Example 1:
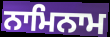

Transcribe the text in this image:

ਨਾਮਿਨਾਮ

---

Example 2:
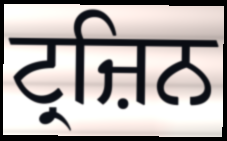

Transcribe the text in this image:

ਟ੍ਰਜ਼ਿਨ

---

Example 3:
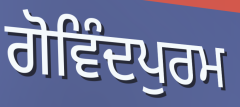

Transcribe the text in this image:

ਗੋਵਿੰਦਪੁਰਮ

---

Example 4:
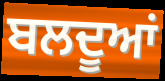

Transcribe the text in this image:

ਬਲਦੂਆਂ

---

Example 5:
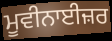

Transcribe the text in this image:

ਮੂਵੀਨਾਈਜ਼ਰ